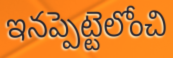
ఇనప్పెట్టెలోంచి